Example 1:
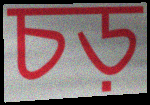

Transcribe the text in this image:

চড়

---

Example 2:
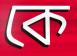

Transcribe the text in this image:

কে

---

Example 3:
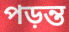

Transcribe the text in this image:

পড়ন্ত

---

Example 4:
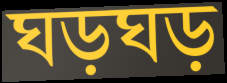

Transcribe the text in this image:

ঘড়ঘড়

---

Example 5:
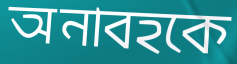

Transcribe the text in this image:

অনাবহকে